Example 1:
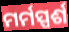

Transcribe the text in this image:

ମର୍ମସ୍ପର୍ଶ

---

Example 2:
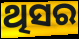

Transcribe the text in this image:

ଥିସର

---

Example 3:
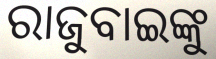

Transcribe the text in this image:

ରାଜୁବାଇଙ୍କୁ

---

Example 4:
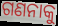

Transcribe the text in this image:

ଗଣନାକୁ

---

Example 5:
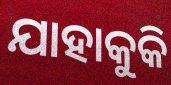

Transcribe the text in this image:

ଯାହାକୁକି